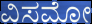
ವಿಸಮೋ